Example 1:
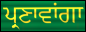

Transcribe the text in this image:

ਪ੍ਰਣਾਵਾਂਗਾ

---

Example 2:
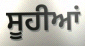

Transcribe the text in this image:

ਸੂਹੀਆਂ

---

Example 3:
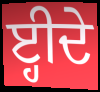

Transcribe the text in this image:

ੲ੍ਹੀਦੇ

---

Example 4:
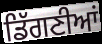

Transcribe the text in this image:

ਡਿੱਗਣੀਆਂ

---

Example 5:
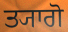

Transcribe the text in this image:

ਤ੍ਯਾਗੋ